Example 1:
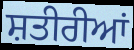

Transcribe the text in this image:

ਸ਼ਤੀਰੀਆਂ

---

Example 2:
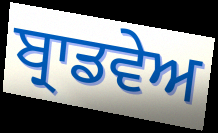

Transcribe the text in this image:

ਬ੍ਰਾਡਵੇਅ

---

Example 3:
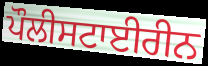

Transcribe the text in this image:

ਪੌਲੀਸਟਾਈਰੀਨ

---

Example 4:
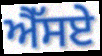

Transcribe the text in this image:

ਐੱਸਏ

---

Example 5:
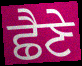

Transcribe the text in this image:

ਛੈਣੇ